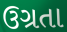
ઉગ્રતા